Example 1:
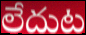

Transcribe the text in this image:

లేదుట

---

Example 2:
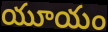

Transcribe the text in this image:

యూయం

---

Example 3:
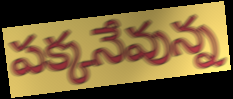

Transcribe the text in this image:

పక్కనేవున్న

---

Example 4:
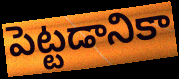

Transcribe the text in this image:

పెట్టడానికా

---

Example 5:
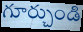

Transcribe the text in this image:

గూర్చుండి